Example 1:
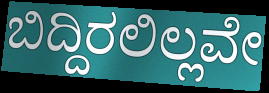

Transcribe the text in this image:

ಬಿದ್ದಿರಲಿಲ್ಲವೇ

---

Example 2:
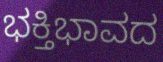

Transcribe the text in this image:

ಭಕ್ತಿಭಾವದ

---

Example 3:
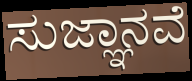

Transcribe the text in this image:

ಸುಜ್ಞಾನವೆ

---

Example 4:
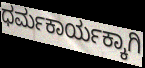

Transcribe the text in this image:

ಧರ್ಮಕಾರ್ಯಕ್ಕಾಗಿ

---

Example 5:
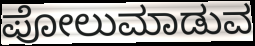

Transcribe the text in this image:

ಪೋಲುಮಾಡುವ